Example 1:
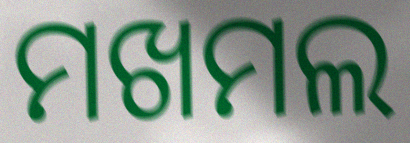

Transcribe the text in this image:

ମଖମଲ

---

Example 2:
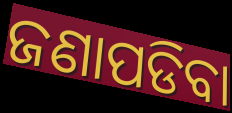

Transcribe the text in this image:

ଜଣାପଡିବା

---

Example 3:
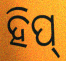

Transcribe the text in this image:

ହିପ୍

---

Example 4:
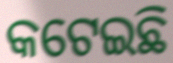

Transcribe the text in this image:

କଟେଇଛି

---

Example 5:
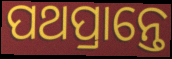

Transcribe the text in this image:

ପଥପ୍ରାନ୍ତେ